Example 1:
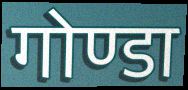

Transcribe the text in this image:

गोण्डा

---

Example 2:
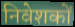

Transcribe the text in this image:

निवेशकों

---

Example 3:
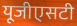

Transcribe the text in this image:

यूजीएसटी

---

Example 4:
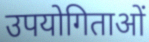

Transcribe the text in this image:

उपयोगिताओं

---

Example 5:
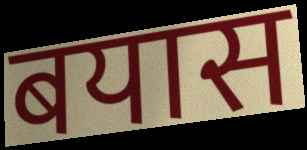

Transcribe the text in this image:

बयास